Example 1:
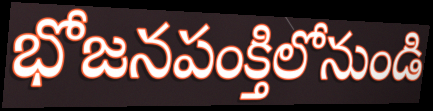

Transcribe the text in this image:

భోజనపంక్తిలోనుండి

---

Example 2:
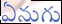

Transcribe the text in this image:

ఏనుగు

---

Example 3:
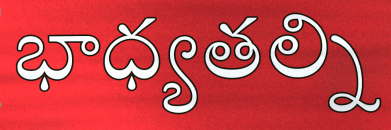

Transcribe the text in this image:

భాధ్యతల్ని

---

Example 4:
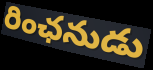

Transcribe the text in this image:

రింఛనుడు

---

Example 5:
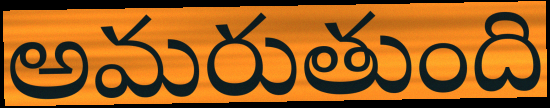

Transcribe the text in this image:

అమరుతుంది